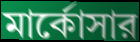
মার্কোসার